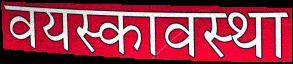
वयस्कावस्था